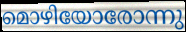
മൊഴിയോരോന്നു